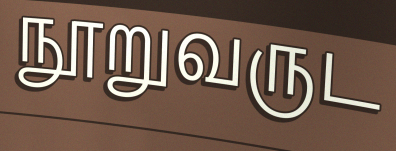
நூறுவருட